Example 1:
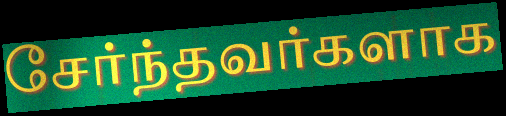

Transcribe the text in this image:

சேர்ந்தவர்களாக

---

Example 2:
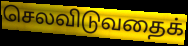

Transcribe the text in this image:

செலவிடுவதைக்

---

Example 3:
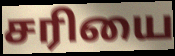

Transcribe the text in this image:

சரியை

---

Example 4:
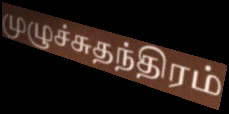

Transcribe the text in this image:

முழுச்சுதந்திரம்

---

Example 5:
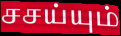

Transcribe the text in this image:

சசய்யும்